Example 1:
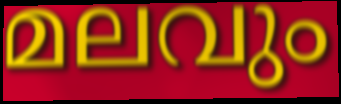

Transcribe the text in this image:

മലവും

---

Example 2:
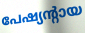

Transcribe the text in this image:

പേഷ്യന്റായ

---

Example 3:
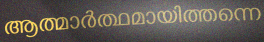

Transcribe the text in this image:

ആത്മാർത്ഥമായിത്തന്നെ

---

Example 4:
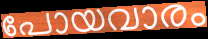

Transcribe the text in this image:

പോയവാരം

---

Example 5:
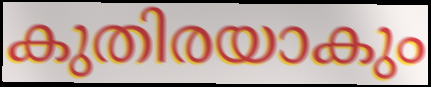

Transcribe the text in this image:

കുതിരയാകും